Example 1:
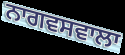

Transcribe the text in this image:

ਨਾਗਵਸਵਾਲਾ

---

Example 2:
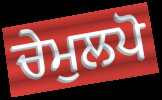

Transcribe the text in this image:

ਚੇਮੁਲਪੋ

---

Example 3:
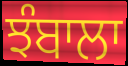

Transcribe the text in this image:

ਝੰਬਾਲਾ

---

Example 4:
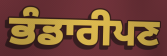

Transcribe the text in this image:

ਭੰਡਾਰੀਪਣ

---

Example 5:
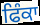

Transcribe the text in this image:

ਫਿੰਕਾ